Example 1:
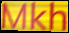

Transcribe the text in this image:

Mkh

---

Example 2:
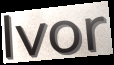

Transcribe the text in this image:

Ivor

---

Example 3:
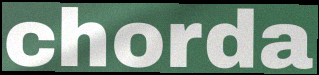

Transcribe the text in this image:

chorda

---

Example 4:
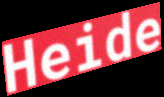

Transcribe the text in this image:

Heide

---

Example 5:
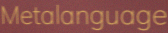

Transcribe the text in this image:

Metalanguage